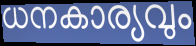
ധനകാര്യവും